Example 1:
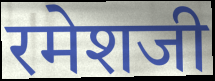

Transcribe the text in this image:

रमेशजी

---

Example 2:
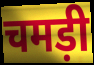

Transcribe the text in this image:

चमड़ी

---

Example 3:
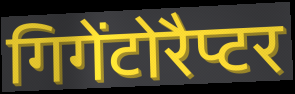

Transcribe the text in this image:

गिगेंटोरैप्टर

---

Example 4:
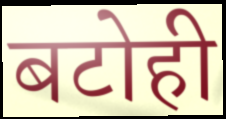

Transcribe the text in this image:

बटोही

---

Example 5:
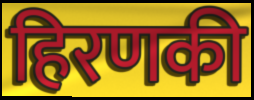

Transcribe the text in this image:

हिरणकी